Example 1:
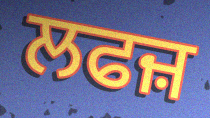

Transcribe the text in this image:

ਲਫਜ਼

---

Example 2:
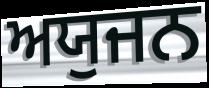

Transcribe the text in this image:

ਅਯੁਜਨ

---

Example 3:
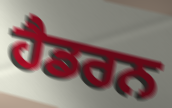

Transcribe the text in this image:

ਹੈਡਰਨ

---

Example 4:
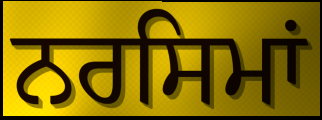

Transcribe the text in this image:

ਨਰਸਿਮਾਂ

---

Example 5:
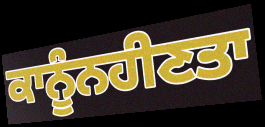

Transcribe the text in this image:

ਕਾਨੂੰਨਹੀਣਤਾ